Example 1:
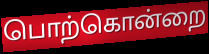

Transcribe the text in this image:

பொற்கொன்றை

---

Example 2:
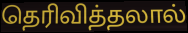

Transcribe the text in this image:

தெரிவித்தலால்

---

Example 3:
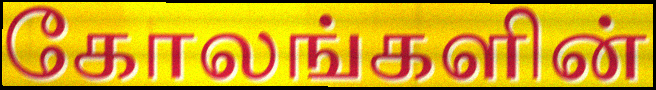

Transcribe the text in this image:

கோலங்களின்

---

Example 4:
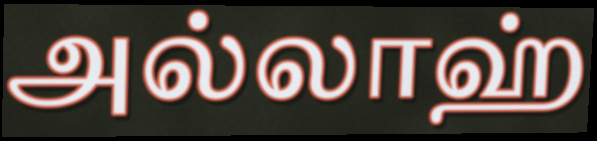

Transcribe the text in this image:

அல்லாஹ்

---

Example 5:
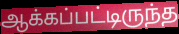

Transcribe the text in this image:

ஆக்கப்பட்டிருந்த